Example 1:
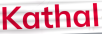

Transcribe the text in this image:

Kathal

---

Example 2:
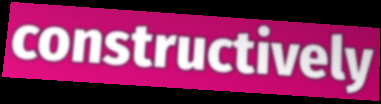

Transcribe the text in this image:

constructively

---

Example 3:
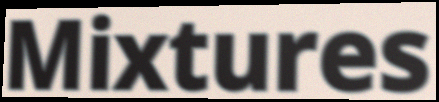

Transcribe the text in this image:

Mixtures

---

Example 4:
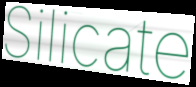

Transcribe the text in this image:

Silicate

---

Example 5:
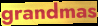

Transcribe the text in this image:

grandmas